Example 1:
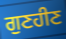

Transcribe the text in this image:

ਗੁਣਹੀਣ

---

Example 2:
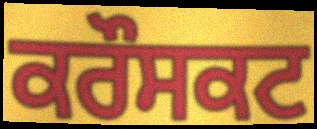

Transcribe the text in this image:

ਕਰੌਸਕਟ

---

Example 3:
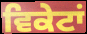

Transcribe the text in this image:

ਵਿਕੇਟਾਂ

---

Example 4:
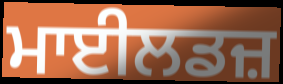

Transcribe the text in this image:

ਮਾਈਲਡਜ਼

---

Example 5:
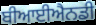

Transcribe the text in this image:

ਬੀਆਈਐਨਡੀ